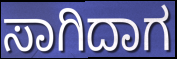
ಸಾಗಿದಾಗ